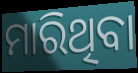
ମାରିଥିବା